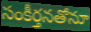
సంకీర్తనతోనూ